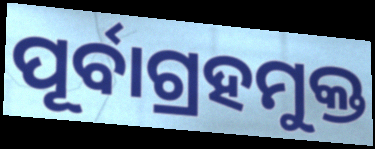
ପୂର୍ବାଗ୍ରହମୁକ୍ତ